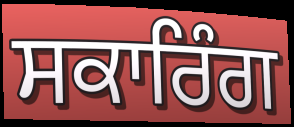
ਸਕਾਰਿੰਗ